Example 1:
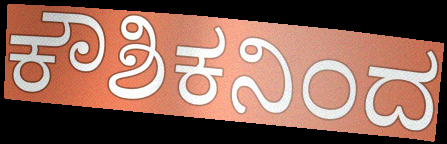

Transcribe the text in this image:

ಕೌಶಿಕನಿಂದ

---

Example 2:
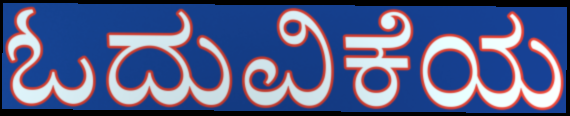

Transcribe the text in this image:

ಓದುವಿಕೆಯ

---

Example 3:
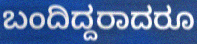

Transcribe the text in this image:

ಬಂದಿದ್ದರಾದರೂ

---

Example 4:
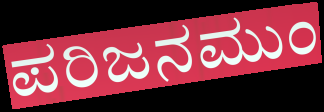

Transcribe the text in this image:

ಪರಿಜನಮುಂ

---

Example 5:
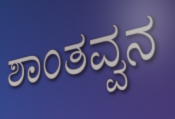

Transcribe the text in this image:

ಶಾಂತವ್ವನ